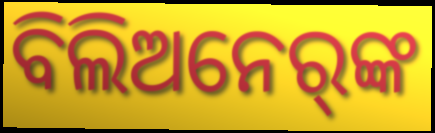
ବିଲିଅନେର୍‌ଙ୍କ